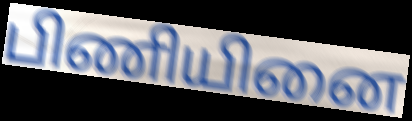
பிணியினை